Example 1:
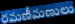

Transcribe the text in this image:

రమణీమణులు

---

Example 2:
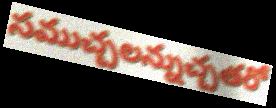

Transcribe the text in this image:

సముచ్చలన్నుచ్చతరో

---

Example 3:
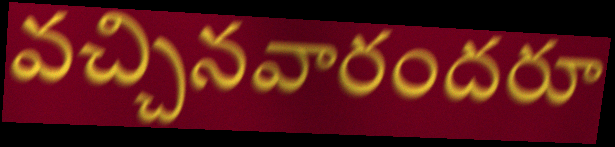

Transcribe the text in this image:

వచ్చినవారందరూ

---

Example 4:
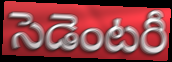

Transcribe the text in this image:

సెడెంటరీ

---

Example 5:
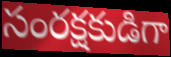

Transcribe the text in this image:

సంరక్షకుడిగా